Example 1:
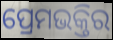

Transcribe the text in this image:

ପ୍ରେମଭକ୍ତିର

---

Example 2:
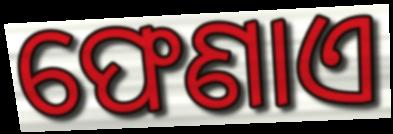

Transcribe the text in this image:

ଫେଣାଏ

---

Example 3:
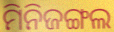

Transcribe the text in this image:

ମିନିଜଙ୍ଗଲ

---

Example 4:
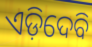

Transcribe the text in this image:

ଏଡ଼ିଦେବି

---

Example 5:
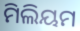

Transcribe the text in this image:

ମିଲିୟମ